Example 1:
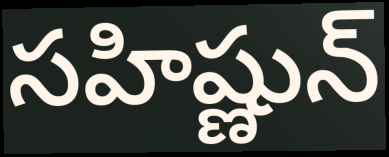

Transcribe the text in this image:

సహిష్ణున్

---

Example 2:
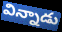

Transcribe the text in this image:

విన్నాడు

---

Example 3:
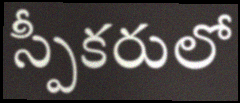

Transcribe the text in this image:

స్పీకరులో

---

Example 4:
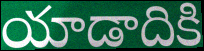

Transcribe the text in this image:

యాడాదికి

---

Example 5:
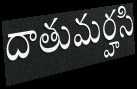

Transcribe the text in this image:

దాతుమర్హసి